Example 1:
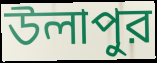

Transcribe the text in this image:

উলাপুর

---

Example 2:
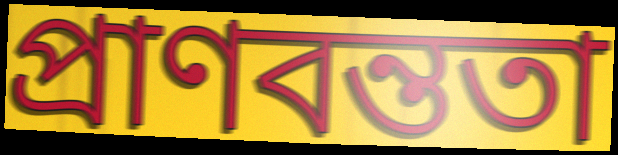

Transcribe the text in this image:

প্রাণবন্ততা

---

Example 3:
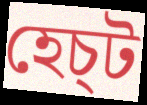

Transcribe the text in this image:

হেচ্ট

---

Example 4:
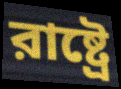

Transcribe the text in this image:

রাষ্ট্রে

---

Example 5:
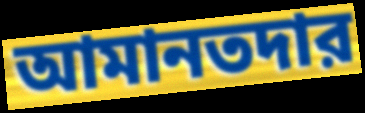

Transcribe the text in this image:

আমানতদার